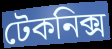
টেকনিক্স